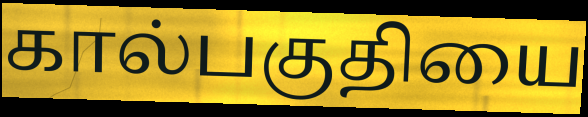
கால்பகுதியை